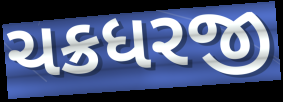
ચક્રધરજી